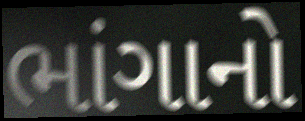
ભાંગાનો